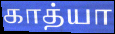
காத்யா